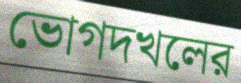
ভোগদখলের